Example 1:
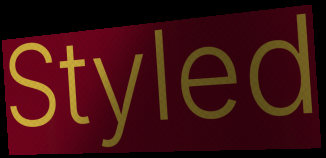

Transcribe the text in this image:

Styled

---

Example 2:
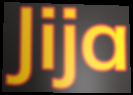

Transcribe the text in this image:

Jija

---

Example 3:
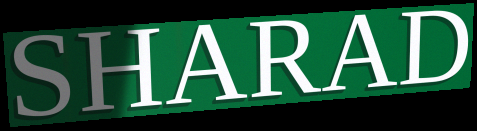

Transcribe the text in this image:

SHARAD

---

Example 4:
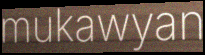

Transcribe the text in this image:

mukawyan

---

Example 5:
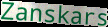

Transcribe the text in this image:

Zanskars